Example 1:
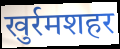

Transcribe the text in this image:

खुर्रमशहर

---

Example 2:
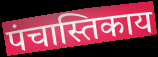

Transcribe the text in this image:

पंचास्तिकाय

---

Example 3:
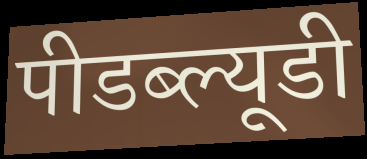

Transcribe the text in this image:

पीडब्ल्यूडी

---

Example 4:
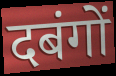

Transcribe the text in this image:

दबंगों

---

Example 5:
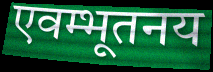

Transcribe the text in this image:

एवम्भूतनय